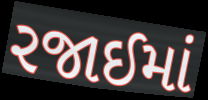
રજાઈમાં